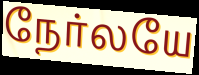
நேர்லயே